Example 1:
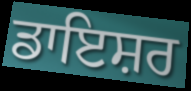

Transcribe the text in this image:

ਡਾਇਸ਼ਰ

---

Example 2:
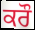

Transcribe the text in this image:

ਕਰੌ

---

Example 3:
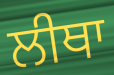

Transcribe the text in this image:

ਲੀਥਾ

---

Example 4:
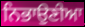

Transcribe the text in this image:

ਨਿਭਾਉਣੀਆ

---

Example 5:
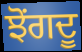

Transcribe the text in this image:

ਝੋਂਗਦੂ